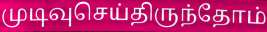
முடிவுசெய்திருந்தோம்